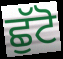
ਛੁੱਟੋ